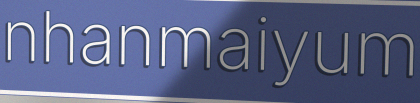
nhanmaiyum